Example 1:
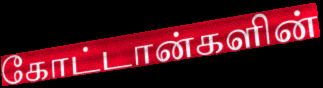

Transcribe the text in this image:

கோட்டான்களின்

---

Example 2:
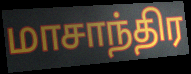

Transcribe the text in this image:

மாசாந்திர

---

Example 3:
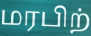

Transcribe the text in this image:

மரபிற்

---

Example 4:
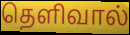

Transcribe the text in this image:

தெளிவால்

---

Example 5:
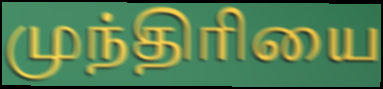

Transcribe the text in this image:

முந்திரியை